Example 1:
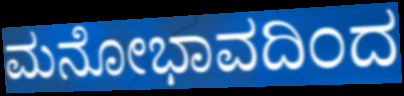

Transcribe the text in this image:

ಮನೋಭಾವದಿಂದ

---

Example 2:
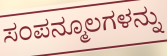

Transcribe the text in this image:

ಸಂಪನ್ಮೂಲಗಳನ್ನು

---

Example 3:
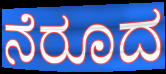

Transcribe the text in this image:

ನೆರೂದ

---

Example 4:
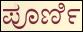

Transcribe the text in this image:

ಪೂರ್ಣಿ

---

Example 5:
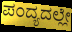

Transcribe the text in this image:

ಪಂದ್ಯದಲ್ಲೇ